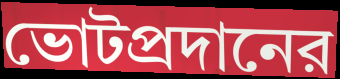
ভোটপ্রদানের